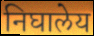
निघालेय